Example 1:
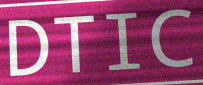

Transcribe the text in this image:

DTIC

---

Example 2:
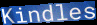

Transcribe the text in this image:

Kindles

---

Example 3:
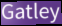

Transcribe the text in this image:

Gatley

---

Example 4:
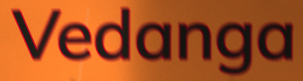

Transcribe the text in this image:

Vedanga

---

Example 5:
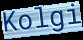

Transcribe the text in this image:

Kolgi